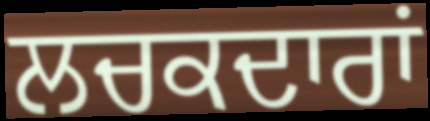
ਲਚਕਦਾਰਾਂ